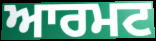
ਆਰਮਟ